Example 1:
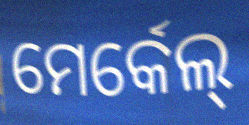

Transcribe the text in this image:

ମେର୍କେଲ୍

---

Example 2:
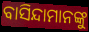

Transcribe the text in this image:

ବାସିନ୍ଦାମାନଙ୍କୁ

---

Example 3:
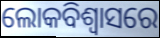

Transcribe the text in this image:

ଲୋକବିଶ୍ୱାସରେ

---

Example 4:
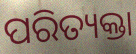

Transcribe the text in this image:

ପରିତ୍ୟକ୍ତା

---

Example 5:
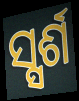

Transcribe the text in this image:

ସ୍ସର୍ଶ